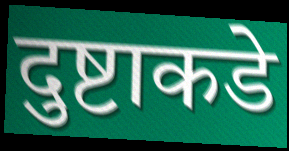
दुष्टाकडे